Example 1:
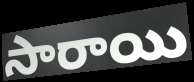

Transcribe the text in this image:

సారాయి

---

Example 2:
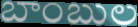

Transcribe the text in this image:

బాంబుల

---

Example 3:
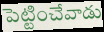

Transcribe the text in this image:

పెట్టించేవాడు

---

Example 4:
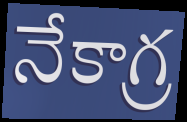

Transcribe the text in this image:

నేకాగ్ర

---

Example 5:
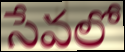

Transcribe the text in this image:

సేవలో